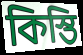
কিস্তি